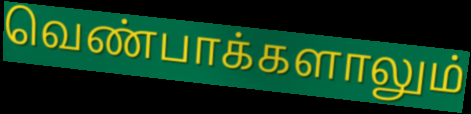
வெண்பாக்களாலும்